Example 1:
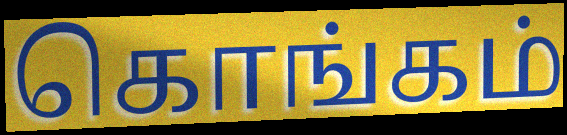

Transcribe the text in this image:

கொங்கம்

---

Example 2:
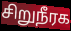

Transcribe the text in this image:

சிறுநீரக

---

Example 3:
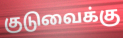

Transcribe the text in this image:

குடுவைக்கு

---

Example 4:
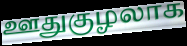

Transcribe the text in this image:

ஊதுகுழலாக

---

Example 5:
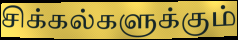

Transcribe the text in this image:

சிக்கல்களுக்கும்